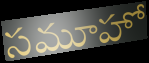
సమూహో